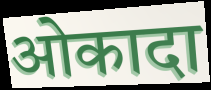
ओकादा